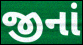
જીનાં